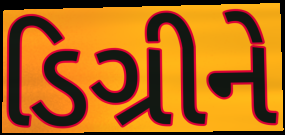
ડિગ્રીને